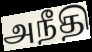
அநீதி